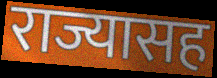
राज्यासह